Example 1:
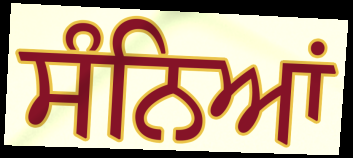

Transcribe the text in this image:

ਸੰਨਿਆਂ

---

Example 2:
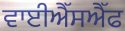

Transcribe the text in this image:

ਵਾਈਐੱਸਐੱਫ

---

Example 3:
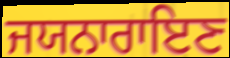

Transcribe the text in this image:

ਜਯਨਾਰਾਇਣ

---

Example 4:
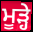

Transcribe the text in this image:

ਮੂੜ੍ਹੇ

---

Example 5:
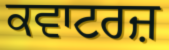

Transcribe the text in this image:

ਕਵਾਟਰਜ਼